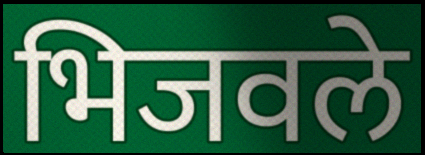
भिजवले